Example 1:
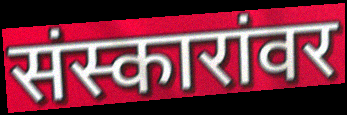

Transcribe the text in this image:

संस्कारांवर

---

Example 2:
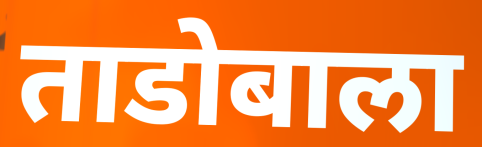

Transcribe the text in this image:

ताडोबाला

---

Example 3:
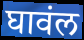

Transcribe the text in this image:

घावंल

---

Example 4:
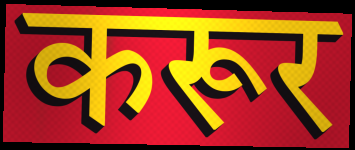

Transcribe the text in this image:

करूर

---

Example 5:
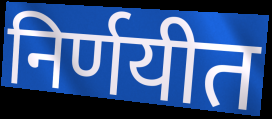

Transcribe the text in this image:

निर्णयीत